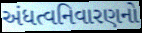
અંધત્વનિવારણનો